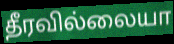
தீரவில்லையா